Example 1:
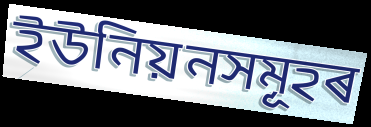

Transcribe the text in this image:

ইউনিয়নসমূহৰ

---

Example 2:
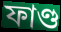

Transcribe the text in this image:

ফাণ্ড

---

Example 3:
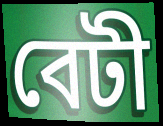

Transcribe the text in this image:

বেটী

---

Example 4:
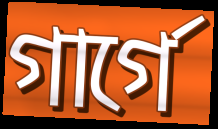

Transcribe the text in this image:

গাৰ্গে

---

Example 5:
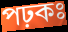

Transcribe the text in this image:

পঢ়কঃ